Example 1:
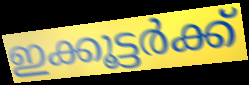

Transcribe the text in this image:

ഇക്കൂട്ടർക്ക്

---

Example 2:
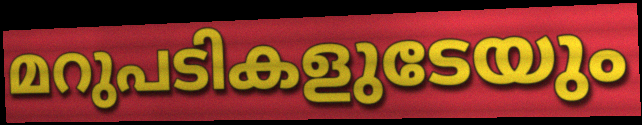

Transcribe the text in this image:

മറുപടികളുടേയും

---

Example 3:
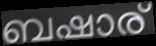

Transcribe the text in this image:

ബഷാര്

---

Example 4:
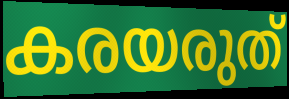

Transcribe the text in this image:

കരയരുത്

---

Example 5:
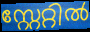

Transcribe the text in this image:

സ്റ്റേറ്റിൽ